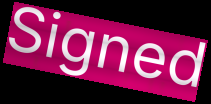
Signed